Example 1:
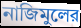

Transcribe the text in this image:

নাজিমুলের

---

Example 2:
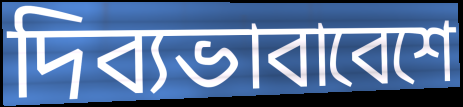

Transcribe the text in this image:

দিব্যভাবাবেশে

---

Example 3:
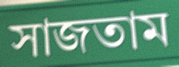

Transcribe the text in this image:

সাজতাম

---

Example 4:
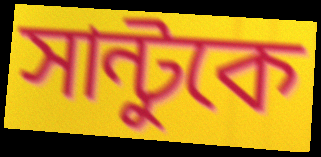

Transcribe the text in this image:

সান্টুকে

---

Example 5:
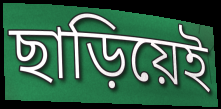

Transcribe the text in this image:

ছাড়িয়েই